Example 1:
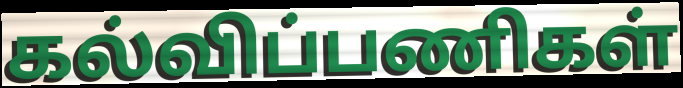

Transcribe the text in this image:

கல்விப்பணிகள்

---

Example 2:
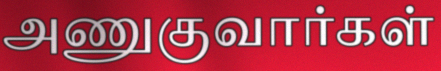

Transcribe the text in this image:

அணுகுவார்கள்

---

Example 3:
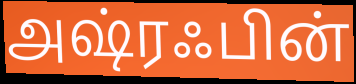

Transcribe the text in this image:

அஷ்ரஃபின்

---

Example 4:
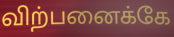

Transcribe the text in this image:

விற்பனைக்கே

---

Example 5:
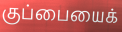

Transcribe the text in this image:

குப்பையைக்